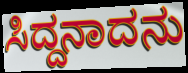
ಸಿದ್ದನಾದನು